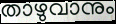
താഴുവാനും